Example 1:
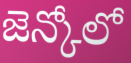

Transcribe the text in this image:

జెన్కోలో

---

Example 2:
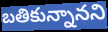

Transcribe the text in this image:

బతికున్నానని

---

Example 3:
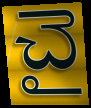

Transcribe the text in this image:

చై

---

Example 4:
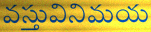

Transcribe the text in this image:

వస్తువినిమయ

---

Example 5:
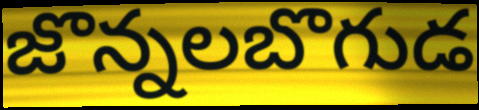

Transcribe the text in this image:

జొన్నలబొగుడ